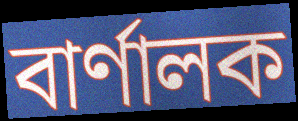
বাৰ্ণালক